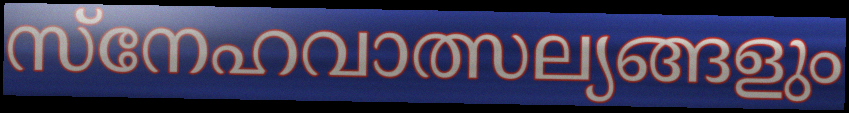
സ്നേഹവാത്സല്യങ്ങളും